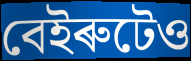
বেইৰুটেও